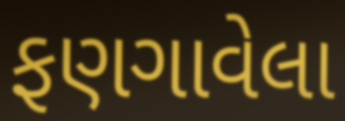
ફણગાવેલા